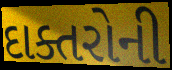
દાક્તરોની